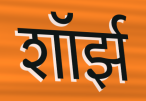
शॉर्झ